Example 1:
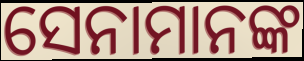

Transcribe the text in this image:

ସେନାମାନଙ୍କ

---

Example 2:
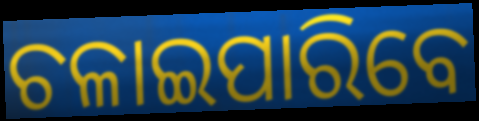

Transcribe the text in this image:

ଚଳାଇପାରିବେ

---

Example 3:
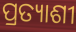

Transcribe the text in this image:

ପ୍ରତ୍ୟାଶୀ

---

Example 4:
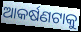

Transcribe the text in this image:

ଆକର୍ଷଣଟାକୁ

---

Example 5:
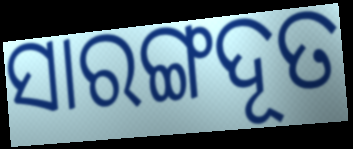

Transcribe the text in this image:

ସାରଙ୍ଗଦୂତ